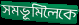
সমভূমিলৈকে